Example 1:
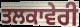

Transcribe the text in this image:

ਤਲਕਾਵੇਰੀ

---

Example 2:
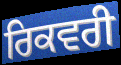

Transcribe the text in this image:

ਰਿਕਵਰੀ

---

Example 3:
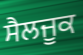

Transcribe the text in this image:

ਸੈਲਜੂਕ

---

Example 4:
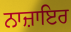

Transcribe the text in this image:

ਨਾਜ਼ਾਇਰ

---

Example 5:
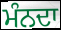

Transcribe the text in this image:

ਮੰਨਦਾ